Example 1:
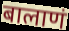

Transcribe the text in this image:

बालाणं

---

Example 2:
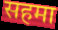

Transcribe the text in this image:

सहमा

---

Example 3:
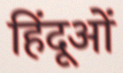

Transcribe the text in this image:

हिंदूओं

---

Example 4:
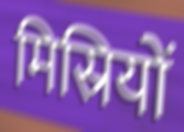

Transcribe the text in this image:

मिस्रियों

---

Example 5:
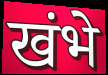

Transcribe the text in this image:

खंभे